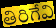
తిరిగేవి